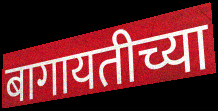
बागायतीच्या